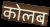
कोलब